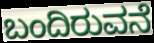
ಬಂದಿರುವನೆ